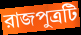
রাজপুত্রটি